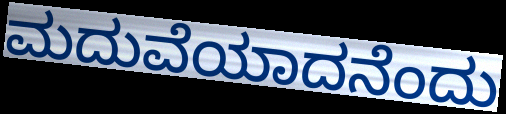
ಮದುವೆಯಾದನೆಂದು